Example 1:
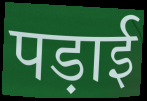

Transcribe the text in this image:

पड़ाई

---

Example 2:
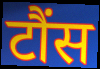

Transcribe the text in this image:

टौंस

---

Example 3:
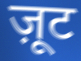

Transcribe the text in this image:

ज़ूट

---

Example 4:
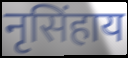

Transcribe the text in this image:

नृसिंहाय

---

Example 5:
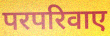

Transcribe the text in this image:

परपरिवाए